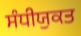
ਸੰਧੀਯੁਕਤ